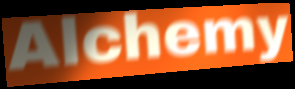
Alchemy